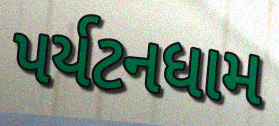
પર્યટનધામ